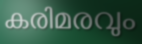
കരിമരവും